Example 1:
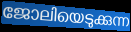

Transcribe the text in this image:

ജോലിയെടുക്കുന്ന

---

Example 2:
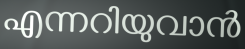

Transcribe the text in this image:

എന്നറിയുവാൻ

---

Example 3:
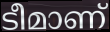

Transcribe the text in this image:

ടീമാണ്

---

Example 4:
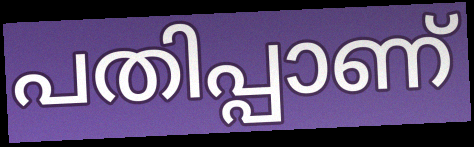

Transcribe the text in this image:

പതിപ്പാണ്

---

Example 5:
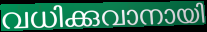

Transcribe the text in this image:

വധിക്കുവാനായി